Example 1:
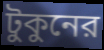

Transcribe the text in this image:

টুকুনের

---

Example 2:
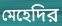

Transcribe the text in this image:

মেহেদির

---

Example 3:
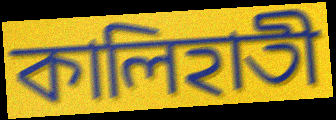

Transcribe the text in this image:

কালিহাতী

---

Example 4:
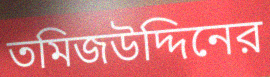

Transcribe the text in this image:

তমিজউদ্দিনের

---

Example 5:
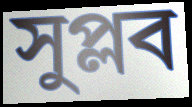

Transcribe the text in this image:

সুপ্লব